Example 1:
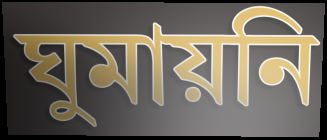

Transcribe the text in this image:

ঘুমায়নি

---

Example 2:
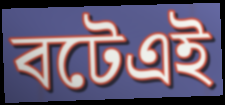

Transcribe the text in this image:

বটেএই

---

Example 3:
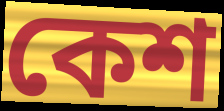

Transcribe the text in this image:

কেশ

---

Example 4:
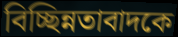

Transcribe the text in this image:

বিচ্ছিন্নতাবাদকে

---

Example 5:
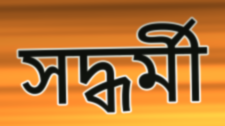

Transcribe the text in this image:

সদ্ধর্মী